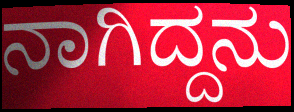
ನಾಗಿದ್ದನು